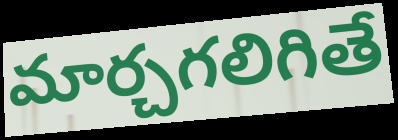
మార్చగలిగితే